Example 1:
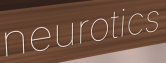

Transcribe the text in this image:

neurotics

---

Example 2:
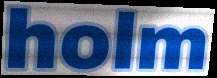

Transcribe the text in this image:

holm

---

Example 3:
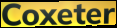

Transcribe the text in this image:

Coxeter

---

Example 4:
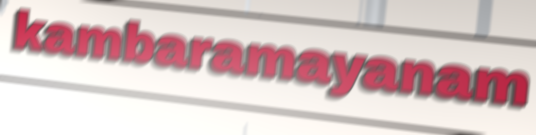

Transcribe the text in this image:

kambaramayanam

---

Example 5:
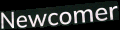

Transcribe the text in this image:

Newcomer